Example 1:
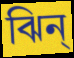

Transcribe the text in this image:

ঝিন্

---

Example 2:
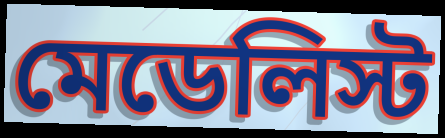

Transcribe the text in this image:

মেডেলিস্ট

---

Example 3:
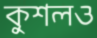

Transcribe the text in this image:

কুশলও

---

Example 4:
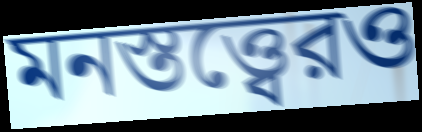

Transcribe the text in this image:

মনস্তত্ত্বেরও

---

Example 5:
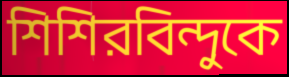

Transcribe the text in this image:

শিশিরবিন্দুকে